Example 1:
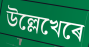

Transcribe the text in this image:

উল্লেখেৰে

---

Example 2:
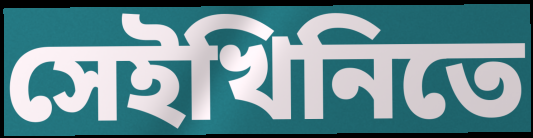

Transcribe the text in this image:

সেইখিনিতে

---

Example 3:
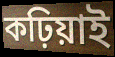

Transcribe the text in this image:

কঢ়িয়াই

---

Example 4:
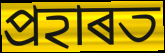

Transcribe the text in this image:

প্ৰহাৰত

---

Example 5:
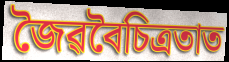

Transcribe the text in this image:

জৈৱবৈচিত্ৰতাত